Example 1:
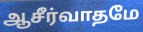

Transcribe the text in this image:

ஆசீர்வாதமே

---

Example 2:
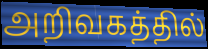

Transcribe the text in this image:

அறிவகத்தில்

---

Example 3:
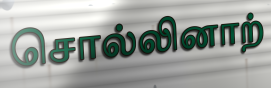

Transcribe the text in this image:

சொல்லினாற்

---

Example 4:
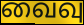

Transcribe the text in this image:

வைவு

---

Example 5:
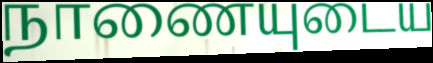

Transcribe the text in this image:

நாணையுடைய